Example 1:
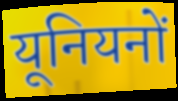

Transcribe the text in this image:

यूनियनों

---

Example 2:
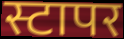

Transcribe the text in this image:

स्टापर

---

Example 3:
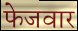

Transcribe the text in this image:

फेजवार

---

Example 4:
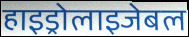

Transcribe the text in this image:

हाइड्रोलाइजेबल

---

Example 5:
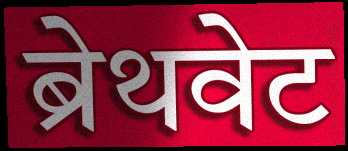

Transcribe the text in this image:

ब्रेथवेट